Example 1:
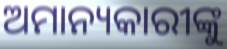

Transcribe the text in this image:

ଅମାନ୍ୟକାରୀଙ୍କୁ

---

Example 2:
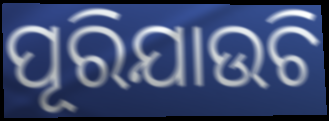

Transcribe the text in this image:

ପୂରିଯାଉଚି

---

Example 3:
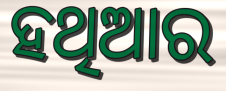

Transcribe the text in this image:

ହଥିଆର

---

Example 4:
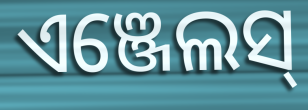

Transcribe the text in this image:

ଏଞ୍ଜେଲସ୍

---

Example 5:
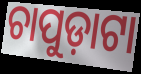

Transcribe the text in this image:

ଚାପୁଡ଼ାଟା